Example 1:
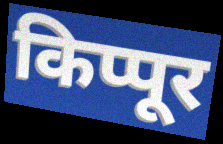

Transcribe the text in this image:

किप्पूर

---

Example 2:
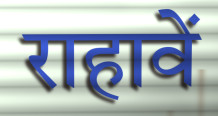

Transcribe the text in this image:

राहावें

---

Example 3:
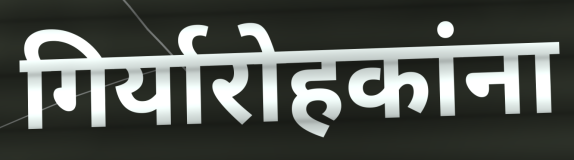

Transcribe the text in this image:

गिर्यारोहकांना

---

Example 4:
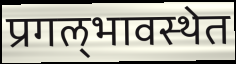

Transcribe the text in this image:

प्रगल्भावस्थेत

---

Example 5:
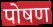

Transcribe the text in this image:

पोषण